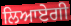
ਲਿਆਏਗੀ